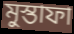
মুস্তাফা